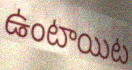
ఉంటాయిట